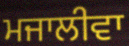
ਮਜਾਲੀਵਾ